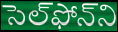
సెల్‌ఫోన్‌ని